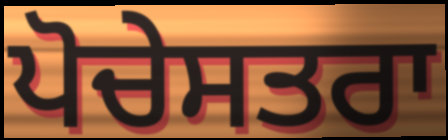
ਪੋਚੇਸਤਰਾ